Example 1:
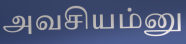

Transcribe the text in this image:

அவசியம்னு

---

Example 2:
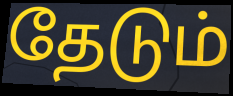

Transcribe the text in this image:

தேடும்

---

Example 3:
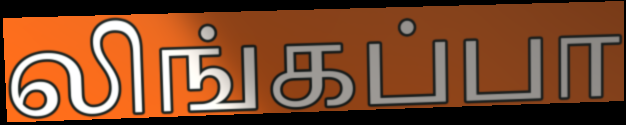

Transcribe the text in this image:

லிங்கப்பா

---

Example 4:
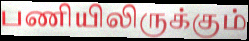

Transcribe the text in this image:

பணியிலிருக்கும்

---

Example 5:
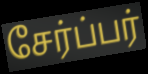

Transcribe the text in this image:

சேர்ப்பர்